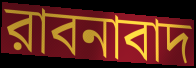
রাবনাবাদ